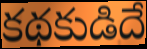
కథకుడిదే